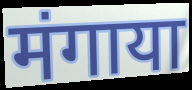
मंगाया